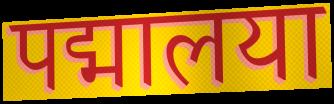
पद्मालया